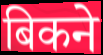
बिकने